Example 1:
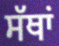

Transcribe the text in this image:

ਸੱਥਾਂ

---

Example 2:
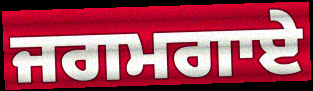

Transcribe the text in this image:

ਜਗਮਗਾਏ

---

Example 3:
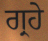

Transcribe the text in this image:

ਗ੍ਰਹੇ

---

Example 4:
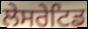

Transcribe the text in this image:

ਲੇਸਰੇਟਿਡ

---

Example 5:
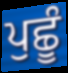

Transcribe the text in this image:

ਪੁਛੂੰ